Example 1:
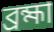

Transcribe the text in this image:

ব্রহ্মা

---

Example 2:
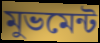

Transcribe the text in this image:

মুভমেন্ট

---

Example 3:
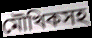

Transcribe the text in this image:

মৌখিকসহ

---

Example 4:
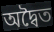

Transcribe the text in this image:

অদ্বৈত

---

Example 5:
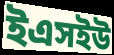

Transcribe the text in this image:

ইএসইউ